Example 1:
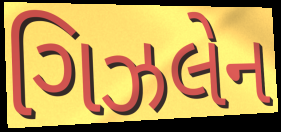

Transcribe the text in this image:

ગિઝલેન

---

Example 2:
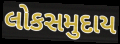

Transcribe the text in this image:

લોકસમુદાય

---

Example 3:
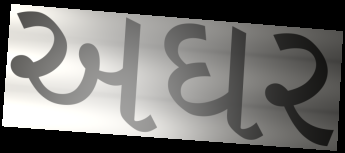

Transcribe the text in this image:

અઘર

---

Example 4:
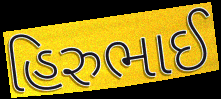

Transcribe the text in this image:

હિરુભાઈ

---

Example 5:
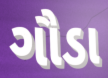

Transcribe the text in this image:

ગૌડા